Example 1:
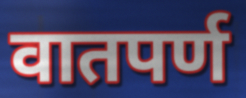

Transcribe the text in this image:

वातपर्ण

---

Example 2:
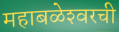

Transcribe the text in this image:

महाबळेश्वरची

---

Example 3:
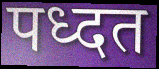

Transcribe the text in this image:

पध्दत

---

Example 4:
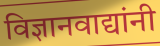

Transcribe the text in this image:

विज्ञानवाद्यांनी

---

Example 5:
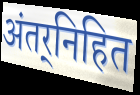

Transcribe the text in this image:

अंतर्निहित